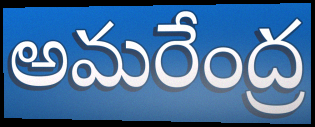
అమరేంద్ర